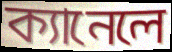
ক্যানেলে